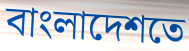
বাংলাদেশতে